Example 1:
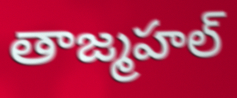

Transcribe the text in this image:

తాజ్మహల్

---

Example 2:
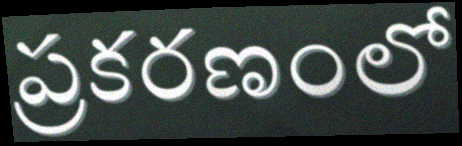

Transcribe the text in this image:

ప్రకరణంలో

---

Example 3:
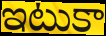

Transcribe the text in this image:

ఇటుకా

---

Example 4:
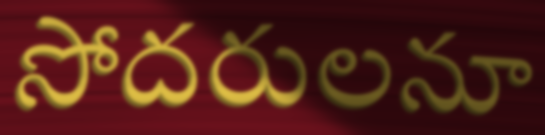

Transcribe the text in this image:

సోదరులనూ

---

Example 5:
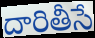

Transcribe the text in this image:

దారితీసే